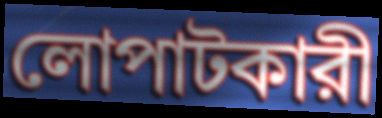
লোপাটকারী